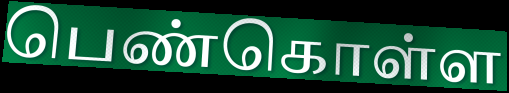
பெண்கொள்ள